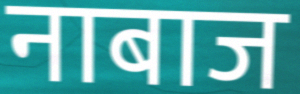
नाबाज